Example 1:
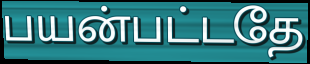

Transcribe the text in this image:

பயன்பட்டதே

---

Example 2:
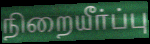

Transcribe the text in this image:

நிறையீர்ப்பு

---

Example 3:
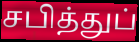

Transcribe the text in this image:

சபித்துப்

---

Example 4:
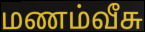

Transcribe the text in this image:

மணம்வீசு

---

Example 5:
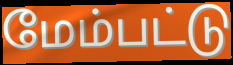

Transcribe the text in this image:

மேம்பட்டு